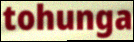
tohunga